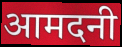
आमदनी